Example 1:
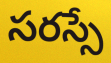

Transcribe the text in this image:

సరస్సే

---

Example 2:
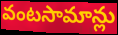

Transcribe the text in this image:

వంటసామాన్లు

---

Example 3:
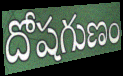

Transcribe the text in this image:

దోషగుణం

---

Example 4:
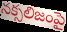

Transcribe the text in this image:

నక్సలిజంపై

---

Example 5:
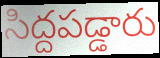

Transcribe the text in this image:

సిద్దపడ్డారు